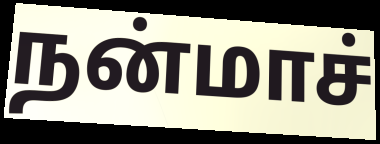
நன்மாச்